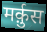
मर्क़ुस